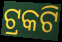
ଟ୍ରକଟି